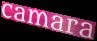
camara